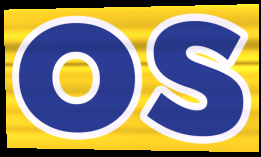
os